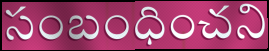
సంబంధించని